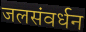
जलसंवर्धन